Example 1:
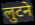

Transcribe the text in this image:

लुटने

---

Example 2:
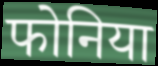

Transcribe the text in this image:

फोनिया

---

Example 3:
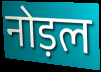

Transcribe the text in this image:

नोड़ल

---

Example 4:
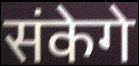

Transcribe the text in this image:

संकेगे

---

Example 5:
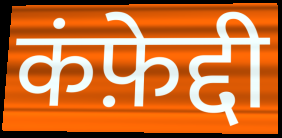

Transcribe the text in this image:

कंफ़ेद्दी